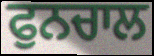
ਫੁਨਚਾਲ